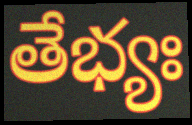
తేభ్యః